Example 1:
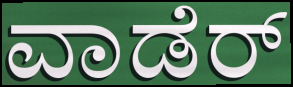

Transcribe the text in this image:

ವಾಡೆರ್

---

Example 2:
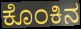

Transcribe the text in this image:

ಕೊಂಕಿನ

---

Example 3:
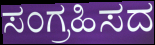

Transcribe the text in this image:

ಸಂಗ್ರಹಿಸದ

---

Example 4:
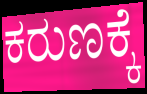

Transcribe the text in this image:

ಕರುಣಕ್ಕೆ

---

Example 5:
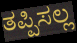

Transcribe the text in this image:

ತಪ್ಪಿಸಲ್ಲ